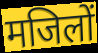
मजिलों